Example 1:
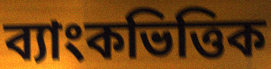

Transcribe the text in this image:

ব্যাংকভিত্তিক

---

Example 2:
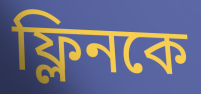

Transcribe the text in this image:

ফ্লিনকে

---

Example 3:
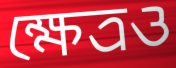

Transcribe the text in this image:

ক্ষেত্রও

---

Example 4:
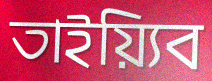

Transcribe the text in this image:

তাইয়্যিব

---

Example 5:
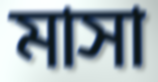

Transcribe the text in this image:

মাসা